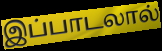
இப்பாடலால்